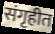
संगृहीत